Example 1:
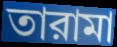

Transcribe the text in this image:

তারামা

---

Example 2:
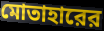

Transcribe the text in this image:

মোতাহারের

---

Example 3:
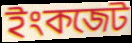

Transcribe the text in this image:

ইংকজেট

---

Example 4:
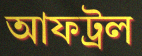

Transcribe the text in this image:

আফট্রল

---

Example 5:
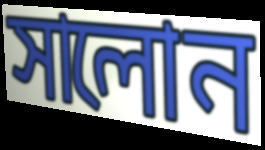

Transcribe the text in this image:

সালোন